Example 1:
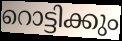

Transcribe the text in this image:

റൊട്ടിക്കും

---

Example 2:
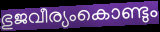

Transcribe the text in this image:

ഭുജവീര്യംകൊണ്ടും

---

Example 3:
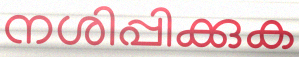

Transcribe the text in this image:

നശിപ്പിക്കുക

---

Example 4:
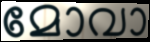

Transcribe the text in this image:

മോവാ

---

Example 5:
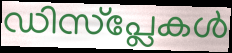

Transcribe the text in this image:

ഡിസ്പ്ലേകൾ